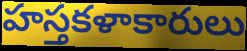
హస్తకళాకారులు